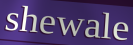
shewale